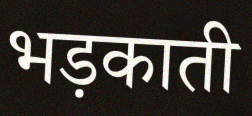
भड़काती